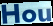
Hou